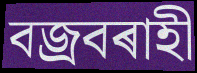
বজ্ৰবৰাহী